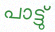
പാട്ടു്